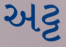
અટ્ટ